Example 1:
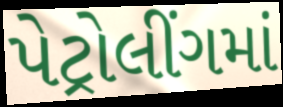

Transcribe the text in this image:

પેટ્રોલીંગમાં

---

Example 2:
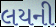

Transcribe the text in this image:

લયની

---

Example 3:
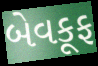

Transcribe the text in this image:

બેવકૂફ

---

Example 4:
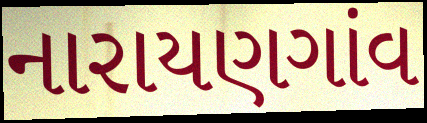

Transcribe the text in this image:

નારાયણગાંવ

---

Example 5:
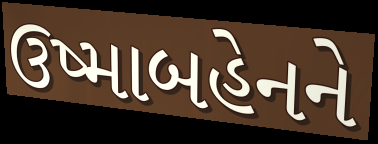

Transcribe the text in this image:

ઉષ્માબહેનને